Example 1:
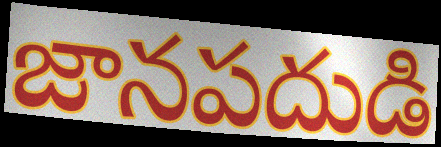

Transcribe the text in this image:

జానపదుడి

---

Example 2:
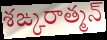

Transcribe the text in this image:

శఙ్కరాత్మన్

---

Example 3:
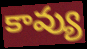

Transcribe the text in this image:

కావ్యు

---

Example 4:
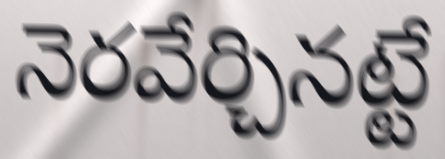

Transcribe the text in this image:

నెరవేర్చినట్టే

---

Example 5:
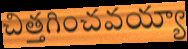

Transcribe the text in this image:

చిత్తగించవయ్యా